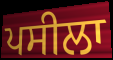
ਪਸੀਲਾ